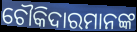
ଚୌକିଦାରମାନଙ୍କ